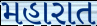
મહારાત